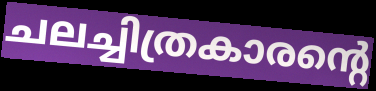
ചലച്ചിത്രകാരന്റെ